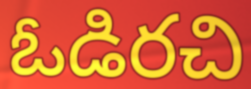
ఓడిరచి